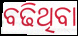
ବଢିଥିବା